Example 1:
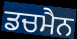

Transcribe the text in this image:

ਡਚਮੈਨ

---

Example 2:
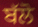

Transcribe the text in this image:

ਬੱਲੋ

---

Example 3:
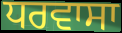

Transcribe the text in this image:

ਧਰਵਾਸਾ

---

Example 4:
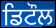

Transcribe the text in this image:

ਡਿਟੌਲ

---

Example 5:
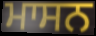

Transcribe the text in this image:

ਮਾਸਨ